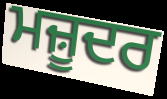
ਮਜ਼ੂਦਰ